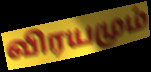
விரயமும்